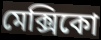
মেক্সিকো